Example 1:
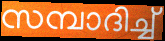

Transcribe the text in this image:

സമ്പാദിച്ച്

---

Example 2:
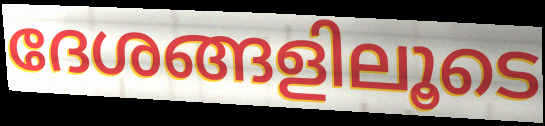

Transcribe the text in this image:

ദേശങ്ങളിലൂടെ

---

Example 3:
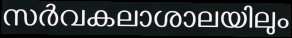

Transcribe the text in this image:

സർവകലാശാലയിലും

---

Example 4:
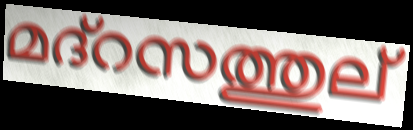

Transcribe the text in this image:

മദ്റസത്തുല്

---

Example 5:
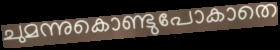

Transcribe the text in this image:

ചുമന്നുകൊണ്ടുപോകാതെ